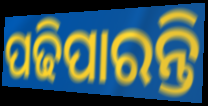
ପଢିପାରନ୍ତି